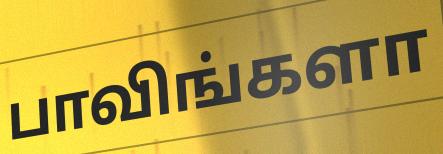
பாவிங்களா